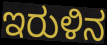
ಇರುಳಿನ